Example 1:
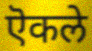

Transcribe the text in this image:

ऎकले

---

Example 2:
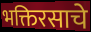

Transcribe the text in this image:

भक्तिरसाचे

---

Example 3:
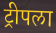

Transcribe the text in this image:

ट्रीपला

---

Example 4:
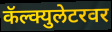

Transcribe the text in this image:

कॅल्क्युलेटरवर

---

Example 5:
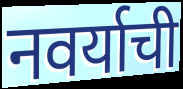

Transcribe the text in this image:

नवर्याची